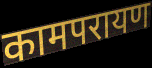
कामपरायण